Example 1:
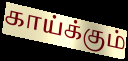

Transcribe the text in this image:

காய்க்கும்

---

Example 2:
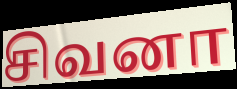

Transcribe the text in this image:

சிவனா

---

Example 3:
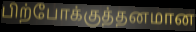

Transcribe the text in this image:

பிற்போக்குத்தனமான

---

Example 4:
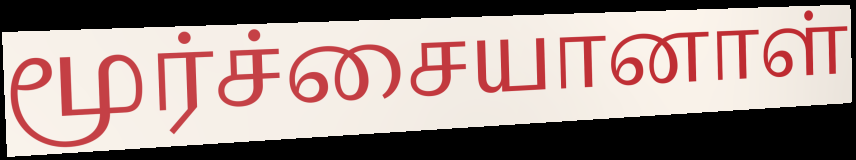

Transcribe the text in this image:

மூர்ச்சையானாள்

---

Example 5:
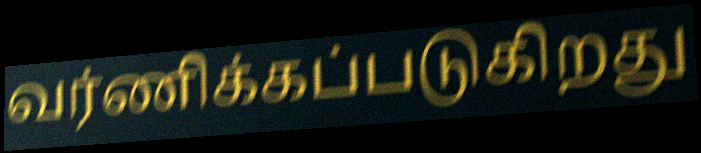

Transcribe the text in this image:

வர்ணிக்கப்படுகிறது